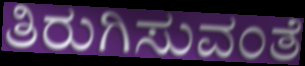
ತಿರುಗಿಸುವಂತೆ